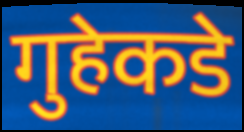
गुहेकडे